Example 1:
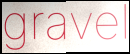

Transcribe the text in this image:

gravel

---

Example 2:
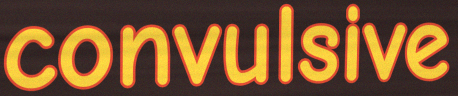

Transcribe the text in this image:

convulsive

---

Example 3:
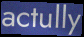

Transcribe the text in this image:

actully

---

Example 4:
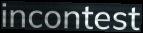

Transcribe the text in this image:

incontest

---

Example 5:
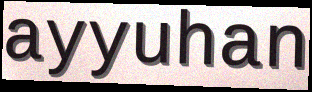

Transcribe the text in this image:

ayyuhan